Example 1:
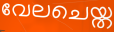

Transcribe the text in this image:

വേലചെയ്ത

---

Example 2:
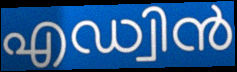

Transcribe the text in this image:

എഡ്വിൻ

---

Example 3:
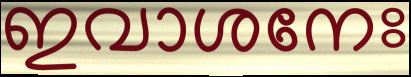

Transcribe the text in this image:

ഇവാശനേഃ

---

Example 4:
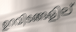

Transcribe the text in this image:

ഉറവിടങ്ങളില്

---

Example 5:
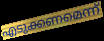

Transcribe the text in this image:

എടുക്കണമെന്ന്